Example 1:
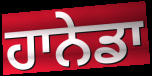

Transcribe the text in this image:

ਹਾਨੇਡਾ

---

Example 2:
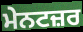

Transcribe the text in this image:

ਮੇਨਟਜ਼ਰ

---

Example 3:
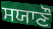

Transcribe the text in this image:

ਸਯਾਣੌ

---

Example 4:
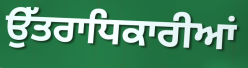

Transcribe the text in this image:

ਉੱਤਰਾਧਿਕਾਰੀਆਂ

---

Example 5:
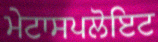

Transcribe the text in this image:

ਮੇਟਾਸਪਲੋਇਟ